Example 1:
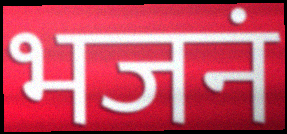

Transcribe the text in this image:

भजनं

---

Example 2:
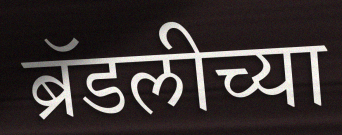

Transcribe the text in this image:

ब्रॅडलीच्या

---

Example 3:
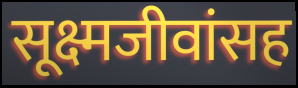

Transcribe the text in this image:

सूक्ष्मजीवांसह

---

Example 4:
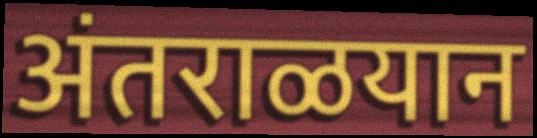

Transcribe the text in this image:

अंतराळयान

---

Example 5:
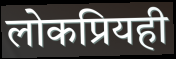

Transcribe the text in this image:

लोकप्रियही